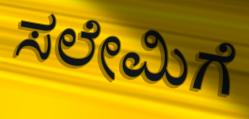
ಸಲೇಮಿಗೆ